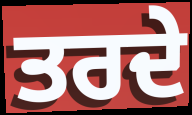
ਤਰਦੇ